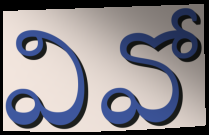
వివో